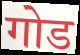
गोड